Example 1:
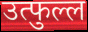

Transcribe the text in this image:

उत्फुल्ल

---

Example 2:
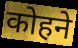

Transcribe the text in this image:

कोहने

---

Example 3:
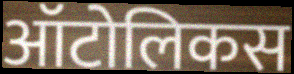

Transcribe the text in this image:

ऑटोलिकस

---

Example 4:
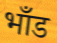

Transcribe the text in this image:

भाँड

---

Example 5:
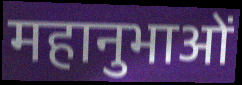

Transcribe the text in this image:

महानुभाओं